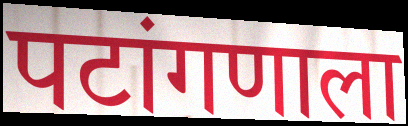
पटांगणाला